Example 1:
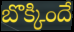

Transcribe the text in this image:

బొక్కిందే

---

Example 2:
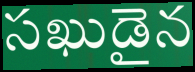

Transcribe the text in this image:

సఖుడైన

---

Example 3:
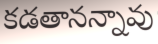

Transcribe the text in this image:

కడతానన్నావు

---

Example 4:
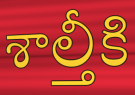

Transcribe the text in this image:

శాల్తీకి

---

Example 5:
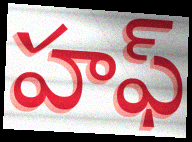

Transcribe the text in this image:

హఫ్